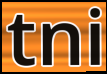
tni